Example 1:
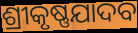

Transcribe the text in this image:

ଶ୍ରୀକୃଷ୍ଣଯାଦବ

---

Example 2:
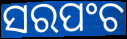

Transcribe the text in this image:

ସରପଂଚ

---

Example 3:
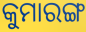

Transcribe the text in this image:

କୁମାରଙ୍ଗ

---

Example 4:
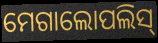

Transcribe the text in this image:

ମେଗାଲୋପଲିସ୍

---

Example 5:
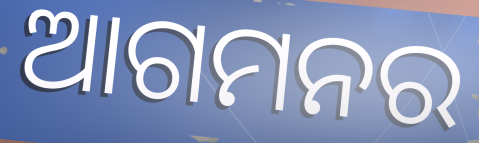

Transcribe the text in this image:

ଆଗମନର